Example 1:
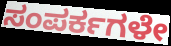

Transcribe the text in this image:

ಸಂಪರ್ಕಗಳೇ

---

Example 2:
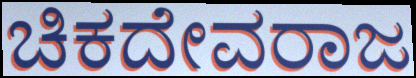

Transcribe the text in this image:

ಚಿಕದೇವರಾಜ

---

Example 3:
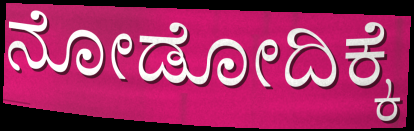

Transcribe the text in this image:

ನೋಡೋದಿಕ್ಕೆ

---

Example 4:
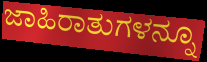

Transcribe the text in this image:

ಜಾಹಿರಾತುಗಳನ್ನೂ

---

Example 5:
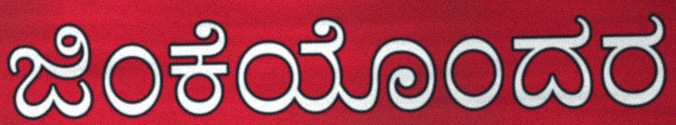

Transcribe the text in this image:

ಜಿಂಕೆಯೊಂದರ